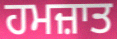
ਹਮਜ਼ਾਤ